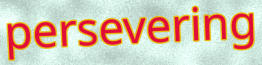
persevering